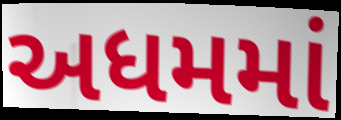
અધમમાં